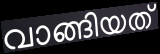
വാങ്ങിയത്